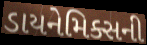
ડાયનેમિક્સની